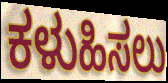
ಕಳುಹಿಸಲು